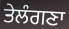
ਤੇਲੰਗਣਾ